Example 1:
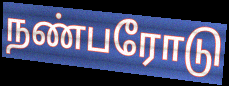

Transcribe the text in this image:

நண்பரோடு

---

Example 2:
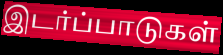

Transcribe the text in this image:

இடர்ப்பாடுகள்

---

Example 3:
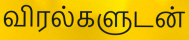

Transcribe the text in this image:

விரல்களுடன்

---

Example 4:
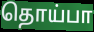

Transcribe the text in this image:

தொய்பா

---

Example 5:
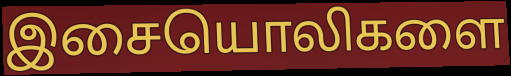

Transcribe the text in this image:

இசையொலிகளை